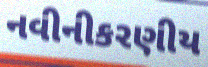
નવીનીકરણીય